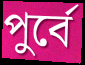
পুর্বে